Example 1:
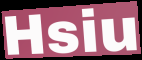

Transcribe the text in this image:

Hsiu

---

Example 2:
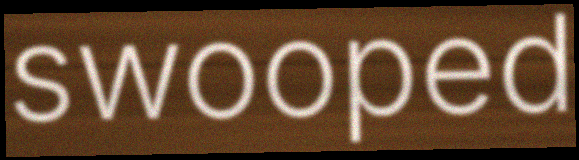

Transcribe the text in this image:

swooped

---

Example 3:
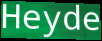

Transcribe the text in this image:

Heyde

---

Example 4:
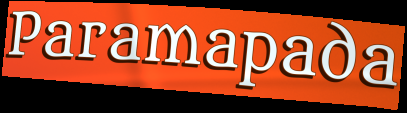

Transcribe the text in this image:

Paramapada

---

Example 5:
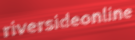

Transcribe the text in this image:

riversideonline